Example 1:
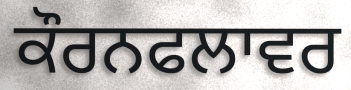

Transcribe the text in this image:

ਕੌਰਨਫਲਾਵਰ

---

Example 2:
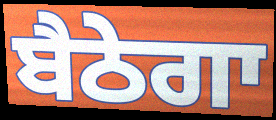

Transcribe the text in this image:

ਬੈਠੇਗਾ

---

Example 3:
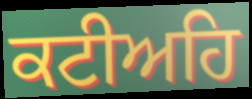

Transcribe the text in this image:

ਕਟੀਅਹਿ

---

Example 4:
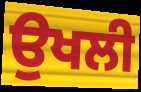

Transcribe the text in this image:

ਉਖਲੀ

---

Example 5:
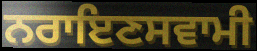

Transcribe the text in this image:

ਨਰਾਇਣਸਵਾਮੀ